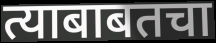
त्याबाबतचा